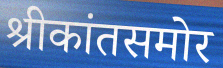
श्रीकांतसमोर